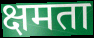
क्षमता